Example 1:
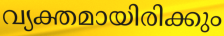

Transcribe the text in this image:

വ്യക്തമായിരിക്കും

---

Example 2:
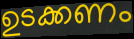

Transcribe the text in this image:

ഉടക്കണം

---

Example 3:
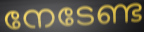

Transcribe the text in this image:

നേടേണ്ട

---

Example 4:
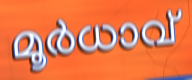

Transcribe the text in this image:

മൂർധാവ്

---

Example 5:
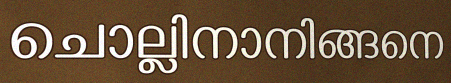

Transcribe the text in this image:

ചൊല്ലിനാനിങ്ങനെ